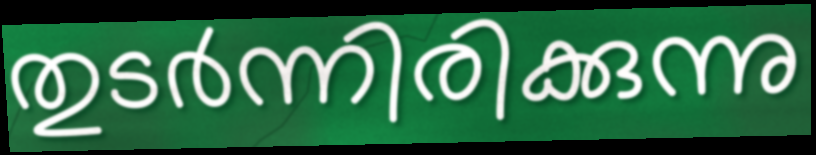
തുടർന്നിരിക്കുന്നു